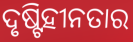
ଦୃଷ୍ଟିହୀନତାର